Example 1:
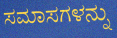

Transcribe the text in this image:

ಸಮಾಸಗಳನ್ನು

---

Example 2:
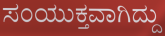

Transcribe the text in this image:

ಸಂಯುಕ್ತವಾಗಿದ್ದು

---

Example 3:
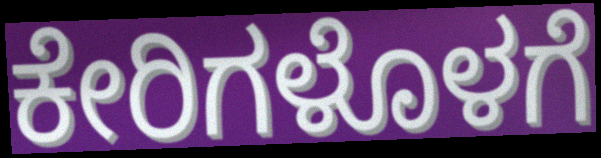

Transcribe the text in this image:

ಕೇರಿಗಳೊಳಗೆ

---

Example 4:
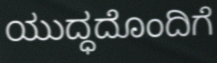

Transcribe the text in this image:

ಯುದ್ಧದೊಂದಿಗೆ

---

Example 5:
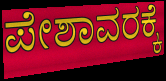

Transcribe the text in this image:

ಪೇಶಾವರಕ್ಕೆ